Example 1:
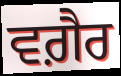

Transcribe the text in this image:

ਵਗ਼ੈਰ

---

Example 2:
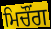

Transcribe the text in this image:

ਮਿਚੌਂਗ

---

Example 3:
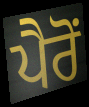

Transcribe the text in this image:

ਪੈਰੋਂ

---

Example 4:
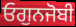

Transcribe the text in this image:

ਓਗੁਨਜੋਬੀ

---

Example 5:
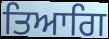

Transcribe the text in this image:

ਤਿਆਗਿ